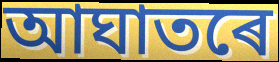
আঘাতৰে